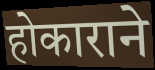
होकाराने